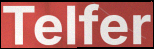
Telfer